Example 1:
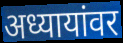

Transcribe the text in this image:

अध्यायांवर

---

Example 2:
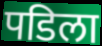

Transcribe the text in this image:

पडिला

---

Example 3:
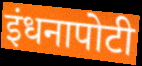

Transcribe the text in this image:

इंधनापोटी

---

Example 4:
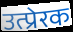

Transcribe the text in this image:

उत्प्रेरक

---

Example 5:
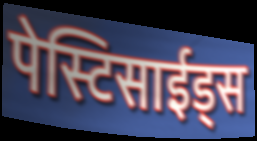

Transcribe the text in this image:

पेस्टिसाईड्स